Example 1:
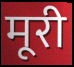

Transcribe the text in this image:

मूरी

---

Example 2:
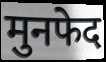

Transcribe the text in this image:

मुनफेद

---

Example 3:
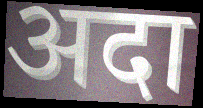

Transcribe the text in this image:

अदा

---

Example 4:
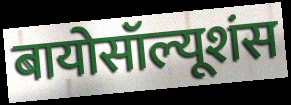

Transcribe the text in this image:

बायोसॉल्यूशंस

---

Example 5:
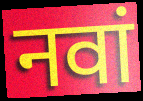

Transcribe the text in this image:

नवां